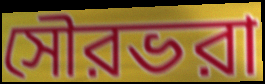
সৌরভরা